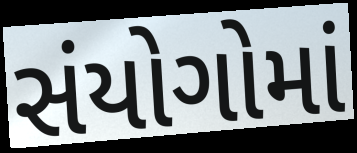
સંયોગોમાં